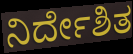
ನಿರ್ದೇಶಿತ